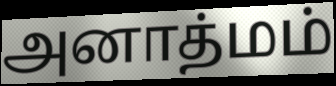
அனாத்மம்